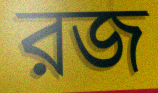
রজ